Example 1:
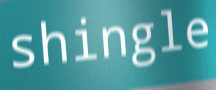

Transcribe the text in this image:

shingle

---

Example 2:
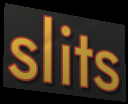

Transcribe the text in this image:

slits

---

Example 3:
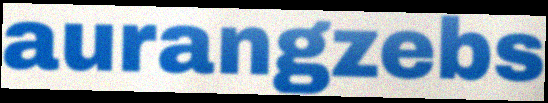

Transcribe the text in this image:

aurangzebs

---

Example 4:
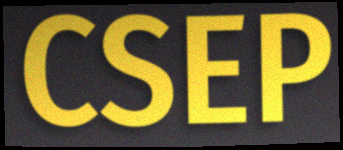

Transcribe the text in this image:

CSEP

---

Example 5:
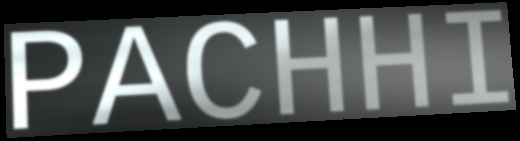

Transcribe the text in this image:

PACHHI